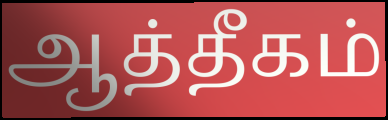
ஆத்தீகம்